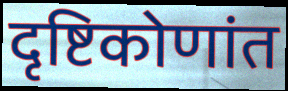
दृष्टिकोणांत